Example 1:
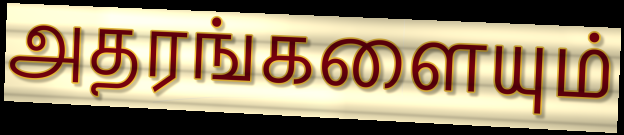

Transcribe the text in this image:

அதரங்களையும்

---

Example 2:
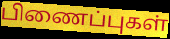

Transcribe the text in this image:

பிணைப்புகள்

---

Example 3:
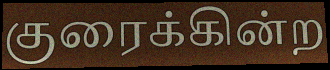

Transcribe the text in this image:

குரைக்கின்ற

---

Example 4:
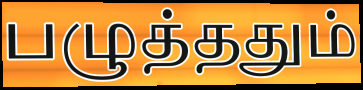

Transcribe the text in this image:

பழுத்ததும்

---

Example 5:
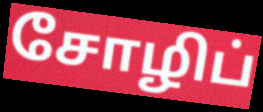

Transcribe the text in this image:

சோழிப்